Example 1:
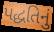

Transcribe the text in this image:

પદ્ધતિનું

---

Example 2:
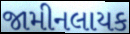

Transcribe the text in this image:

જામીનલાયક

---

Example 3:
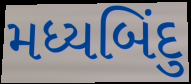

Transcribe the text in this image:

મધ્યબિંદુ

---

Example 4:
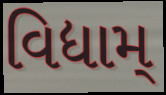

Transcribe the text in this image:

વિદ્યામ્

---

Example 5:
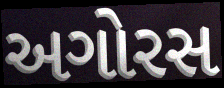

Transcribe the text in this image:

અગોરસ